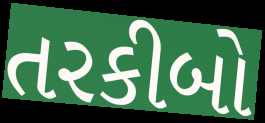
તરકીબો